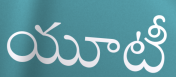
యూటీ